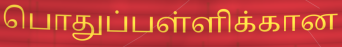
பொதுப்பள்ளிக்கான